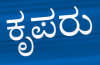
ಕೃಪರು